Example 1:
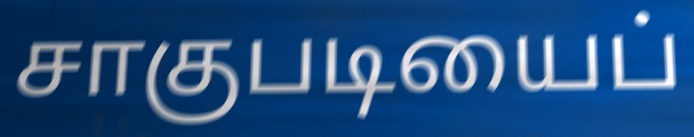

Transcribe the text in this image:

சாகுபடியைப்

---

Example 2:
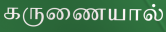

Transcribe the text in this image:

கருணையால்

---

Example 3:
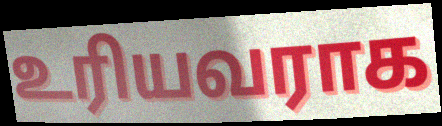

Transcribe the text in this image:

உரியவராக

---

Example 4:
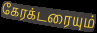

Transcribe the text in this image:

கேரக்டரையும்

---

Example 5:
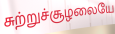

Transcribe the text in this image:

சுற்றுச்சூழலையே